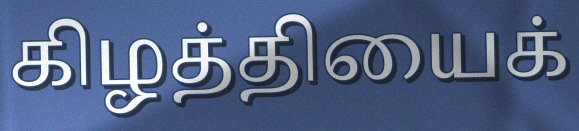
கிழத்தியைக்